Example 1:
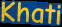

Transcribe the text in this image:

Khati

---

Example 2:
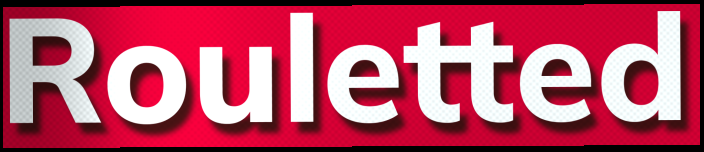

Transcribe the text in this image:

Rouletted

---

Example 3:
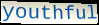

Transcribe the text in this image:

youthful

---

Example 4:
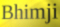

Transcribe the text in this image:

Bhimji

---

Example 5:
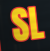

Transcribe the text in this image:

SL